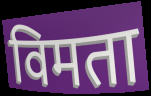
विमता